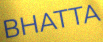
BHATTA